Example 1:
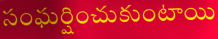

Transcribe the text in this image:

సంఘర్షించుకుంటాయి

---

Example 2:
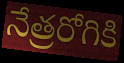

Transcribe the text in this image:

నేత్రరోగికి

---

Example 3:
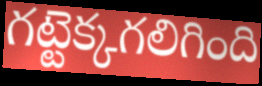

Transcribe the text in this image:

గట్టెక్కగలిగింది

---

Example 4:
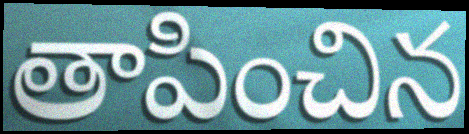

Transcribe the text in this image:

తాపించిన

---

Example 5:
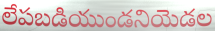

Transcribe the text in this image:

లేపబడియుండనియెడల